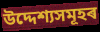
উদ্দেশ্যসমূহৰ